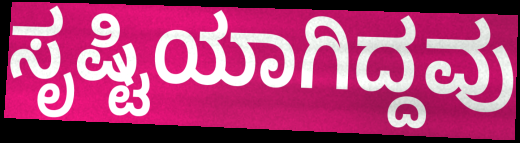
ಸೃಷ್ಟಿಯಾಗಿದ್ದವು